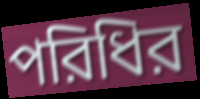
পরিধির